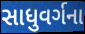
સાધુવર્ગના